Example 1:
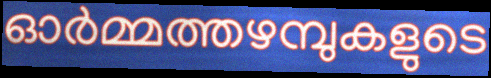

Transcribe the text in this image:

ഓർമ്മത്തഴമ്പുകളുടെ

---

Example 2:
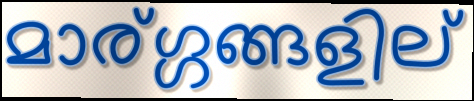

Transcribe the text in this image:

മാര്ഗ്ഗങ്ങളില്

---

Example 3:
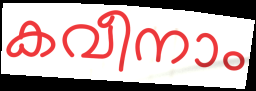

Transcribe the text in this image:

കവീനാം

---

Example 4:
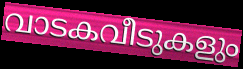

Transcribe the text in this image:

വാടകവീടുകളും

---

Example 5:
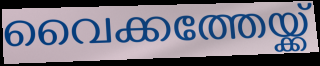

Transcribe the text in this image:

വൈക്കത്തേയ്ക്ക്